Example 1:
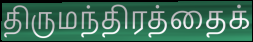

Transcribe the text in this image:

திருமந்திரத்தைக்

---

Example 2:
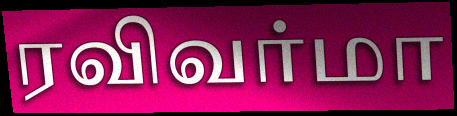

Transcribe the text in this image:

ரவிவர்மா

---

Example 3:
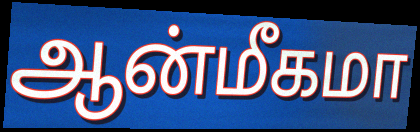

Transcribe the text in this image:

ஆன்மீகமா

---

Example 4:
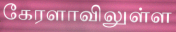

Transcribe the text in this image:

கேரளாவிலுள்ள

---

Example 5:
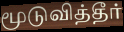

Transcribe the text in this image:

மூடுவித்தீர்